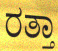
ರತ್ತಾ